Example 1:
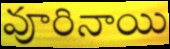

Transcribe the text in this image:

వూరినాయి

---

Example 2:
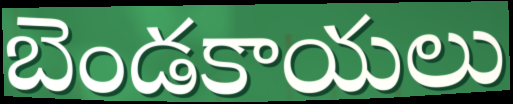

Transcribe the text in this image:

బెండకాయలు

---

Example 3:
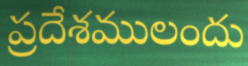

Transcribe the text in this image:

ప్రదేశములందు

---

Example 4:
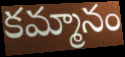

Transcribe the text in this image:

కమ్మానం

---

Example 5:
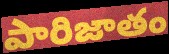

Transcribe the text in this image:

పారిజాతం